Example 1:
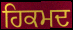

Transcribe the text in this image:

ਹਿਕਮਦ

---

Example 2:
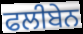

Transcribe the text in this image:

ਫਲੀਬੇਨ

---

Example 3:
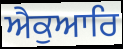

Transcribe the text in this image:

ਐਕੁਆਰਿ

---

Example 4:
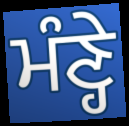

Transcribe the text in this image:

ਮੰਣ੍ਹੇ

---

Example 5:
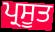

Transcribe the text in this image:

ਪ੍ਰਸੂਤ